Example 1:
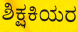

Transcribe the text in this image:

ಶಿಕ್ಷಕಿಯರ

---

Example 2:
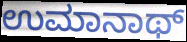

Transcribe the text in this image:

ಉಮಾನಾಥ್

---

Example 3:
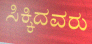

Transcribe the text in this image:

ಸಿಕ್ಕಿದವರು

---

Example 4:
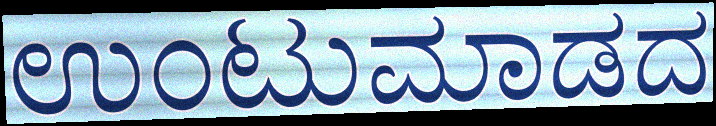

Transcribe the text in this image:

ಉಂಟುಮಾಡದ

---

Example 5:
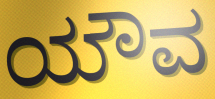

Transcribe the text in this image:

ಯೌವ